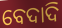
ବେଦାଦି